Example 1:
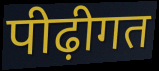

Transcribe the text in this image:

पीढ़ीगत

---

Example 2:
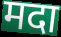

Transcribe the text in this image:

मदा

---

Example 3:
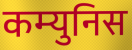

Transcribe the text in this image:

कम्युनिस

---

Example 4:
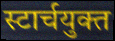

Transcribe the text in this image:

स्टार्चयुक्त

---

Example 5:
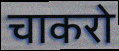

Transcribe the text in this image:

चाकरो